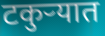
टकुऱ्यात